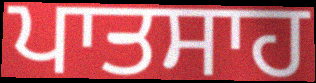
ਪਾਤਸਾਹ